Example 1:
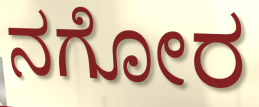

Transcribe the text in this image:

ನಗೋರ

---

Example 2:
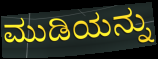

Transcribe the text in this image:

ಮುಡಿಯನ್ನು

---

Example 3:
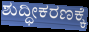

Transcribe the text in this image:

ಶುದ್ಧೀಕರಣಕ್ಕೆ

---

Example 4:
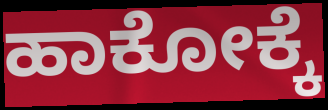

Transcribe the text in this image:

ಹಾಕೋಕ್ಕೆ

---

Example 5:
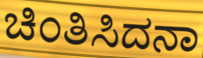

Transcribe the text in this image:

ಚಿಂತಿಸಿದನಾ